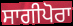
ਸਾਗੀਪੋਰਾ